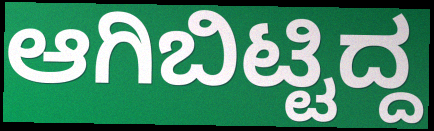
ಆಗಿಬಿಟ್ಟಿದ್ದ